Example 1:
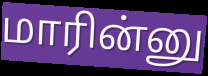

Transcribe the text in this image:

மாரின்னு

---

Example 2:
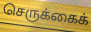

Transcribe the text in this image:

செருக்கைக்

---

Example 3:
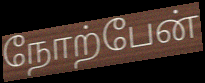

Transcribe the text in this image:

நோற்பேன்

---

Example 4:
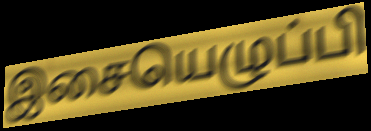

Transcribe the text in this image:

இசையெழுப்பி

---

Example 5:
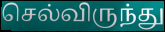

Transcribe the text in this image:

செல்விருந்து